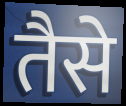
तैसे